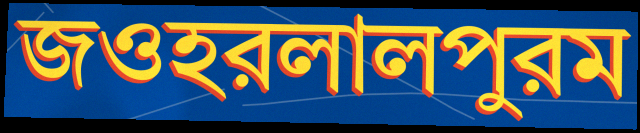
জওহরলালপুরম